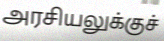
அரசியலுக்குச்